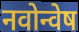
नवोन्वेष